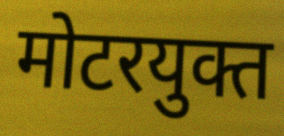
मोटरयुक्त